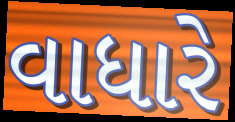
વાધારે